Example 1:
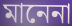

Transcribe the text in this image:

মানেনা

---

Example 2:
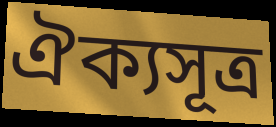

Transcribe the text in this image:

ঐক্যসূত্র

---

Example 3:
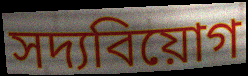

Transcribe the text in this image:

সদ্যবিয়োগ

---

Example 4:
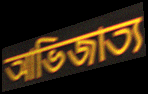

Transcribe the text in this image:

আভিজাত্য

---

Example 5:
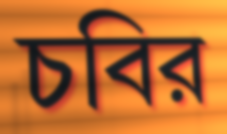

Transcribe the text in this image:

চবির